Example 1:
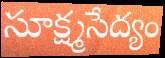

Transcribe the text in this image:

సూక్ష్మసేద్యం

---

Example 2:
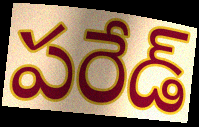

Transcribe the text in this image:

పరేడ్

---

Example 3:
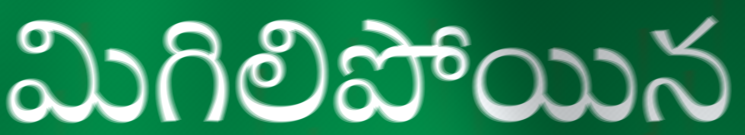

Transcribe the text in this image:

మిగిలిపోయిన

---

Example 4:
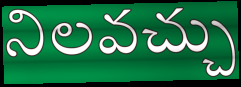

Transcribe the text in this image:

నిలవచ్చు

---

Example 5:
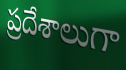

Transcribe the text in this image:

ప్రదేశాలుగా